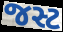
જસ્ટ